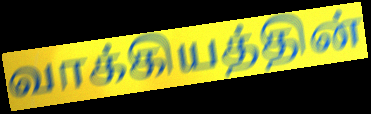
வாக்கியத்தின்